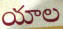
యాల